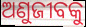
ଅଣୁଜୀବକୁ